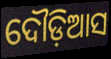
ଦୌଡ଼ିଆସ